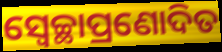
ସ୍ୱେଚ୍ଛାପ୍ରଣୋଦିତ